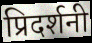
प्रिदर्शनी